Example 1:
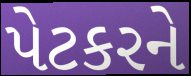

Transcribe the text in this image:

પેટકરને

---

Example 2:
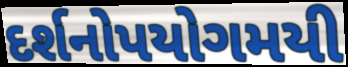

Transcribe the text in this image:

દર્શનોપયોગમયી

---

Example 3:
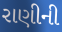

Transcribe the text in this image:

રાણીની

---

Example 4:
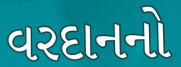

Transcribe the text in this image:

વરદાનનો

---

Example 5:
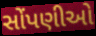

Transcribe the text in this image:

સોંપણીઓ